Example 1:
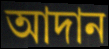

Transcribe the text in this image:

আদান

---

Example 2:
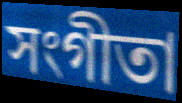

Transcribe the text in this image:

সংগীতা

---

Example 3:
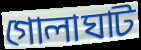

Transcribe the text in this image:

গোলাঘাট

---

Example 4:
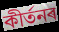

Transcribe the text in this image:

কীৰ্তনৰ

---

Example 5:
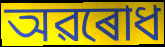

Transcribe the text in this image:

অৱৰোধ